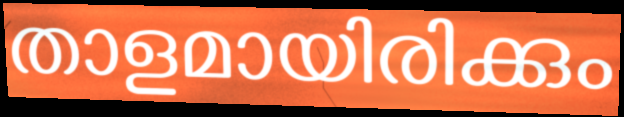
താളമായിരിക്കും